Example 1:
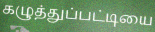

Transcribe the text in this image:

கழுத்துப்பட்டியை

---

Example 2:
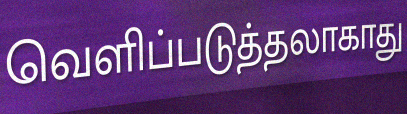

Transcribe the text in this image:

வெளிப்படுத்தலாகாது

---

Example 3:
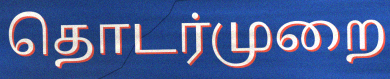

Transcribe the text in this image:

தொடர்முறை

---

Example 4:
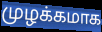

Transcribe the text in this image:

முழக்கமாக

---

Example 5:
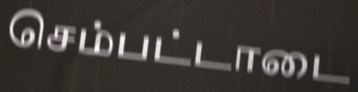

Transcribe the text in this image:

செம்பட்டாடை